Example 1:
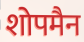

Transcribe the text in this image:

शोपमैन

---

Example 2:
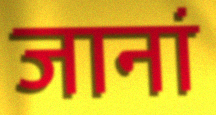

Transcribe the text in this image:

जानां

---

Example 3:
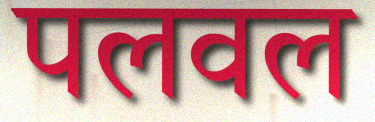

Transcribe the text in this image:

पलवल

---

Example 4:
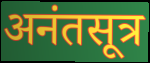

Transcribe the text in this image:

अनंतसूत्र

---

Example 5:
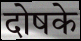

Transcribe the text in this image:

दोषके